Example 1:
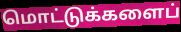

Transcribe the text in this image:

மொட்டுக்களைப்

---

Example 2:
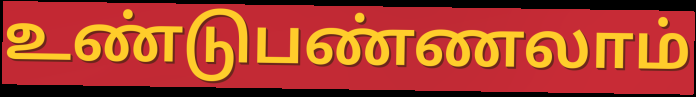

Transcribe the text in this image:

உண்டுபண்ணலாம்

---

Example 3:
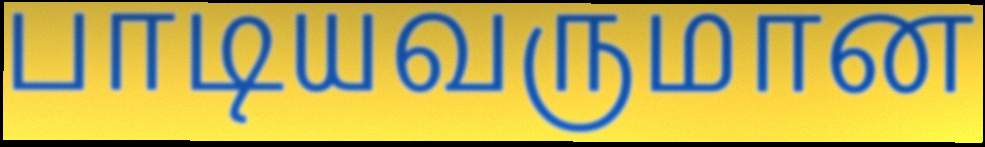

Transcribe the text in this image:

பாடியவருமான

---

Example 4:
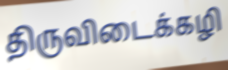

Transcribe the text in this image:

திருவிடைக்கழி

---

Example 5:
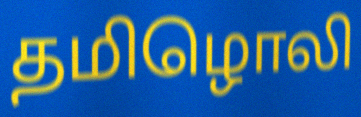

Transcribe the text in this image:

தமிழொலி